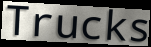
Trucks